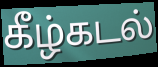
கீழ்கடல்